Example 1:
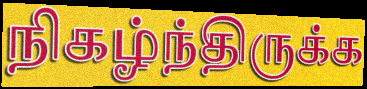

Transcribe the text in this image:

நிகழ்ந்திருக்க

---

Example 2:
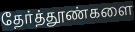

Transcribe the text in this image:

தேர்த்தூண்களை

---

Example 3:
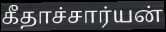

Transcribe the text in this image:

கீதாச்சார்யன்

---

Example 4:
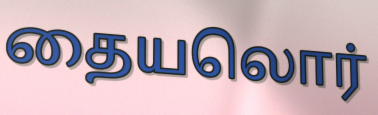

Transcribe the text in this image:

தையலொர்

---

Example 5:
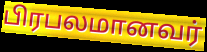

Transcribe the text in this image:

பிரபலமானவர்